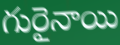
గురైనాయి